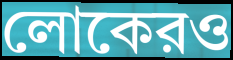
লোকেরও